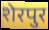
शेरपुर